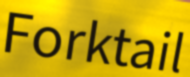
Forktail